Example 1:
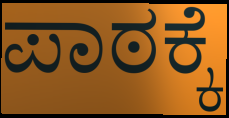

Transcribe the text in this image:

ಪಾಠಕ್ಕೆ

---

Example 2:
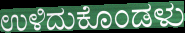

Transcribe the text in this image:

ಉಳಿದುಕೊಂಡಳು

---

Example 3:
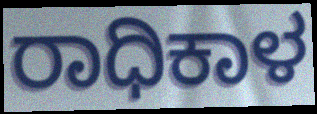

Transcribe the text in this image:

ರಾಧಿಕಾಳ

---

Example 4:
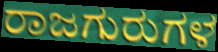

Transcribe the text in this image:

ರಾಜಗುರುಗಳ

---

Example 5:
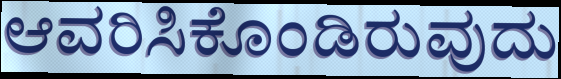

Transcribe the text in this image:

ಆವರಿಸಿಕೊಂಡಿರುವುದು